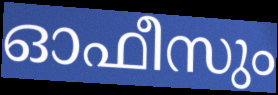
ഓഫീസും